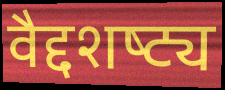
वैद्दशष्ट्य